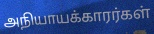
அநியாயக்காரர்கள்